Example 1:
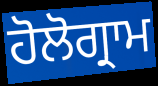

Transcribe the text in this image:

ਹੋਲੋਗ੍ਰਾਮ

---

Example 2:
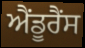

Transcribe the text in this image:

ਐਂਡੂਰੈਂਸ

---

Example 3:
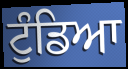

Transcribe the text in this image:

ਟੁੰਡਿਆ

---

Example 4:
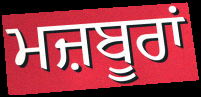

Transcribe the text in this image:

ਮਜ਼ਬੂਰਾਂ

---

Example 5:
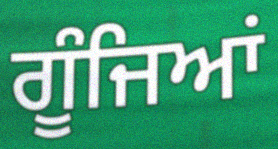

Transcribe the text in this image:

ਗੂੰਜਿਆਂ